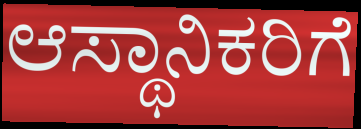
ಆಸ್ಥಾನಿಕರಿಗೆ